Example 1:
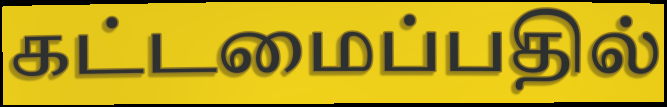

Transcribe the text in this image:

கட்டமைப்பதில்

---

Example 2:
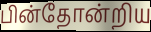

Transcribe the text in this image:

பின்தோன்றிய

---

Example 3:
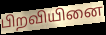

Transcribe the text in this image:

பிறவியினை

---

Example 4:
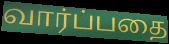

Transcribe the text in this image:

வார்ப்பதை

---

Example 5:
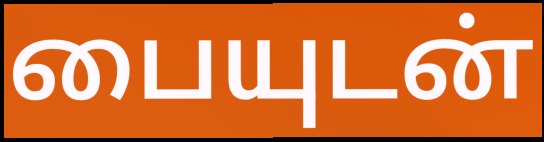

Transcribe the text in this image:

பையுடன்